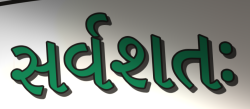
સર્વશતઃ